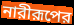
নারীরূপের